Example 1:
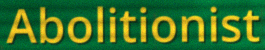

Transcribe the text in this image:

Abolitionist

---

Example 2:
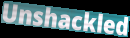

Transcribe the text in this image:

Unshackled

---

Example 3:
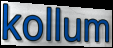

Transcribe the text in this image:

kollum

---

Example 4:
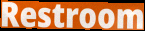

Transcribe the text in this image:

Restroom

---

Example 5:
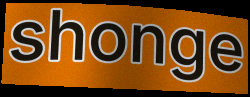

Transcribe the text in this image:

shonge